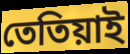
তেতিয়াই